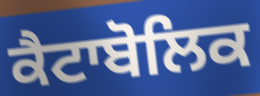
ਕੈਟਾਬੋਲਿਕ